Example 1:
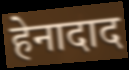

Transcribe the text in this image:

हेनादाद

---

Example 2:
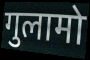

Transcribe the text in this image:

गुलामो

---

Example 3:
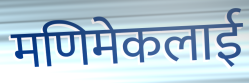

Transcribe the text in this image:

मणिमेकलाई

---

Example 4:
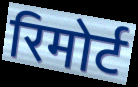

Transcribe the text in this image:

रिमोर्ट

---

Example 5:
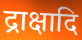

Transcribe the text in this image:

द्राक्षादि